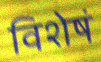
विशेषं